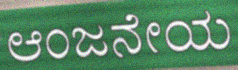
ಆಂಜನೇಯ